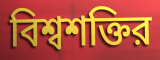
বিশ্বশক্তির